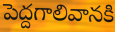
పెద్దగాలివానకి